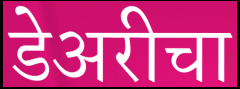
डेअरीचा